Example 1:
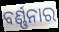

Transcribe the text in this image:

ବର୍ଣ୍ଣନାର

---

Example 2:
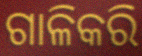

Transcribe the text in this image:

ଗାଳିକରି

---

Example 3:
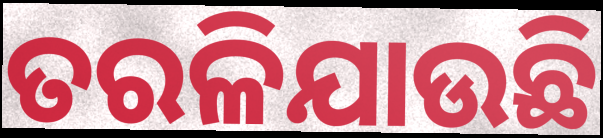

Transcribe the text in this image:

ତରଳିଯାଉଛି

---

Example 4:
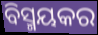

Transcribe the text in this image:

ବିସ୍ମୟକର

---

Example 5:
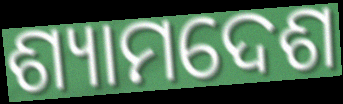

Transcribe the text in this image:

ଶ୍ୟାମଦେଶ